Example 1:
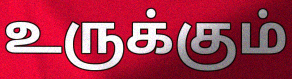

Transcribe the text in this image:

உருக்கும்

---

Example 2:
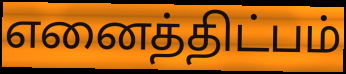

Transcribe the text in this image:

எனைத்திட்பம்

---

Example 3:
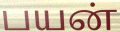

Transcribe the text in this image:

பயன்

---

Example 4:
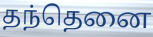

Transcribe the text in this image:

தந்தெனை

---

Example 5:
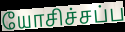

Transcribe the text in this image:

யோசிச்சப்ப